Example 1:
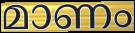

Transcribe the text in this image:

മാണം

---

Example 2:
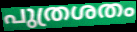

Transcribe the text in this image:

പുത്രശതം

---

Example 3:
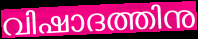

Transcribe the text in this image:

വിഷാദത്തിനു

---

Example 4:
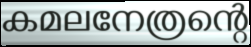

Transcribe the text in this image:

കമലനേത്രന്റെ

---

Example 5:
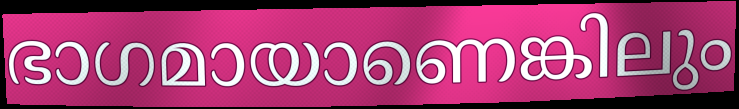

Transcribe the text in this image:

ഭാഗമായാണെങ്കിലും